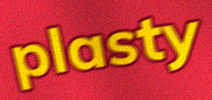
plasty